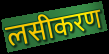
लसीकरण